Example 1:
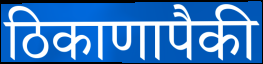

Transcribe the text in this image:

ठिकाणापैकी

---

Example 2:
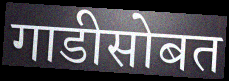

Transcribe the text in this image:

गाडीसोबत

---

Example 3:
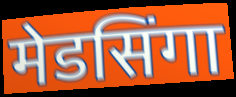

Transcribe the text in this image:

मेडसिंगा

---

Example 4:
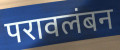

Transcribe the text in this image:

परावलंबन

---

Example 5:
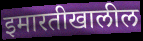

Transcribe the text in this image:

इमारतीखालील